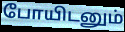
போயிடனும்